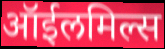
ऑईलमिल्स